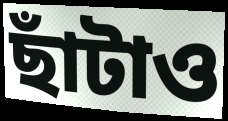
ছাঁটাও